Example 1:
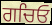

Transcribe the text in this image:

ਗਚਿਓ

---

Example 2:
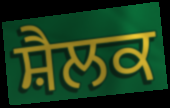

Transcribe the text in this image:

ਸ਼ੈਲਕ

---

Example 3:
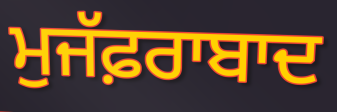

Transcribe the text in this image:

ਮੁਜੱਫ਼ਰਾਬਾਦ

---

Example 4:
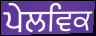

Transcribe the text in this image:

ਪੇਲਵਿਕ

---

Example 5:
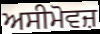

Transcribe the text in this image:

ਅਸੀਮੋਵਜ਼